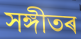
সঙ্গীতৰ